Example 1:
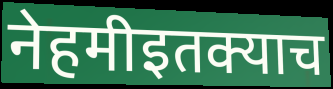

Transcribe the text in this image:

नेहमीइतक्याच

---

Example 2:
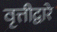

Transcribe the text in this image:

वृत्तीद्वारे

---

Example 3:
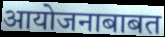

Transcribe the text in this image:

आयोजनाबाबत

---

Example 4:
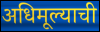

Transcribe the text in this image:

अधिमूल्याची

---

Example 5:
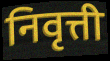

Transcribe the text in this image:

निवृत्ती